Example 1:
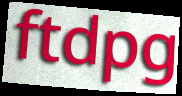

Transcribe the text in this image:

ftdpg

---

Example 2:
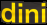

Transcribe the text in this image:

dini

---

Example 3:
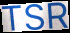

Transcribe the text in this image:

TSR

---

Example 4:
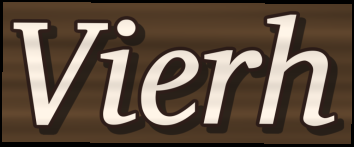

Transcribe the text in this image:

Vierh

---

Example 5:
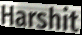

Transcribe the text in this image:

Harshit